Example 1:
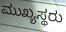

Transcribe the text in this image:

ಮುಖ್ಯಸ್ಥರು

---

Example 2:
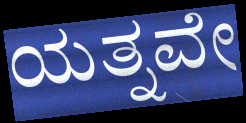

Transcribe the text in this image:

ಯತ್ನವೇ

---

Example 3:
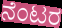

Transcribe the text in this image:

ನೆಂಟರ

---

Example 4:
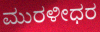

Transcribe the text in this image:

ಮುರಳೀಧರ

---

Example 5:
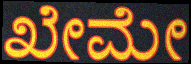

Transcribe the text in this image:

ಖೇಮೇ